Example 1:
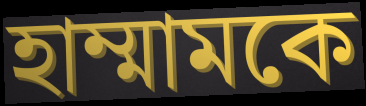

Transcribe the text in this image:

হাম্মামকে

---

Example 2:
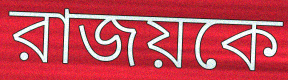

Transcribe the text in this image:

রাজয়কে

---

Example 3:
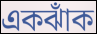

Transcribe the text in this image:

একঝাঁক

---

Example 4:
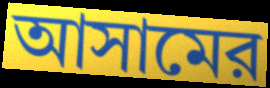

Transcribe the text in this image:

আসামের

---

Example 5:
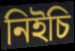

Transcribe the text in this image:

নিইচি